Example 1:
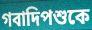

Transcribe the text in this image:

গবাদিপশুকে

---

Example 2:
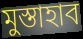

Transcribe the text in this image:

মুস্তাহাব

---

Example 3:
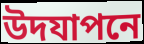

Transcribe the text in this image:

উদযাপনে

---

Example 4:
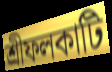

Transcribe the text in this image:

শ্রীফলকাটি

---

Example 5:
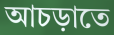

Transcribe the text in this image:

আচড়াতে